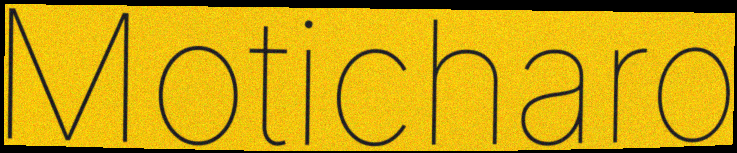
Moticharo